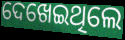
ଦେଖେଇଥିଲେ